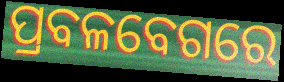
ପ୍ରବଳବେଗରେ